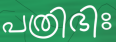
പത്രിഭിഃ